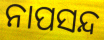
ନାପସନ୍ଦ